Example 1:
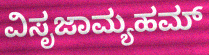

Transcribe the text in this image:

ವಿಸೃಜಾಮ್ಯಹಮ್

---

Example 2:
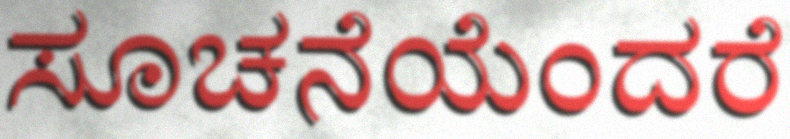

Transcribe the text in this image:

ಸೂಚನೆಯೆಂದರೆ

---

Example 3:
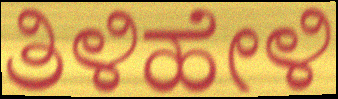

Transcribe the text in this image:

ತಿಳಿಹೇಳಿ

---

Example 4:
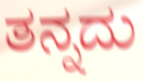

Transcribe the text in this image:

ತನ್ನದು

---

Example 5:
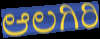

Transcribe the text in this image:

ಆಲಗಿರಿ